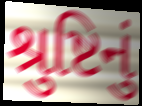
શ્રુષ્ટિનું